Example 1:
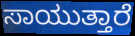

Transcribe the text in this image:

ಸಾಯುತ್ತಾರೆ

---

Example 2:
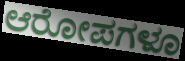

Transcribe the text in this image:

ಆರೋಪಗಳೂ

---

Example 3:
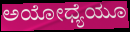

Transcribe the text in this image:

ಅಯೋಧ್ಯೆಯೂ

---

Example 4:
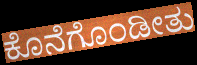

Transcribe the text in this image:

ಕೊನೆಗೊಂಡೀತು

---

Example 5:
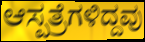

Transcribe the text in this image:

ಆಸ್ಪತ್ರೆಗಳಿದ್ದವು